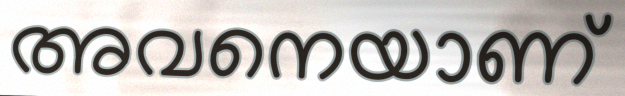
അവനെയാണ്